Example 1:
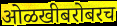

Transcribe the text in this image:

ओळखीबरोबरच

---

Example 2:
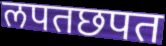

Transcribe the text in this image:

लपतछपत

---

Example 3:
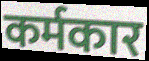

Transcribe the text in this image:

कर्मकार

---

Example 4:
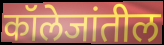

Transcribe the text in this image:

कॉलेजांतील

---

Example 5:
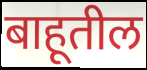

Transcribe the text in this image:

बाहूतील